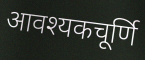
आवश्यकचूर्णि